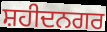
ਸ਼ਹੀਦਨਗਰ